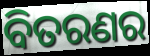
ବିତରଣର